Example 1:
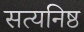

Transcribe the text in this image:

सत्यनिष्ठ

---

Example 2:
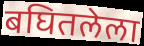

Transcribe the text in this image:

बघितलेला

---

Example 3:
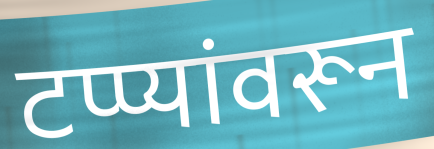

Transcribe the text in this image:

टप्प्यांवरून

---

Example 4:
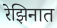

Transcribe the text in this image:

रेझिनात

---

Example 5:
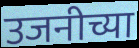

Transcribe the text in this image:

उजनीच्या